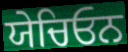
ਯੇਚਿਓਨ